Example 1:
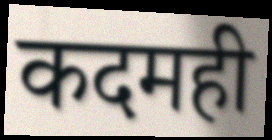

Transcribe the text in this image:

कदमही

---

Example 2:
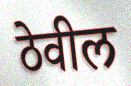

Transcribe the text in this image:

ठेवील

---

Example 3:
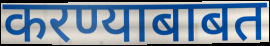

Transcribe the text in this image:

करण्याबाबत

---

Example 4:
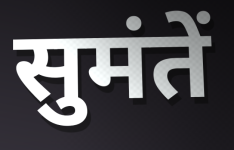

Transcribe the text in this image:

सुमंतें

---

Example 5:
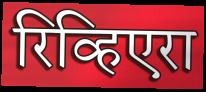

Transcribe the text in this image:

रिव्हिएरा